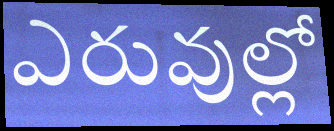
ఎరువుల్లో